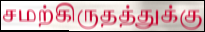
சமற்கிருதத்துக்கு